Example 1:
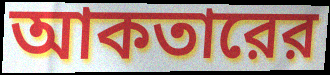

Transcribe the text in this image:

আকতারের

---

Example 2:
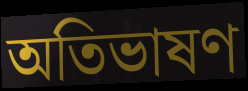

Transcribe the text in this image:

অতিভাষণ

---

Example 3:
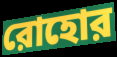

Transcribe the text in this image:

রোহোর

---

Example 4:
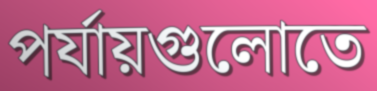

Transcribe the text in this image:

পর্যায়গুলোতে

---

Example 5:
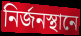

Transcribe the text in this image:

নির্জনস্থানে